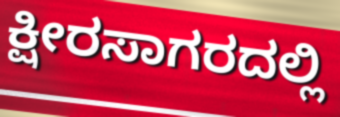
ಕ್ಷೀರಸಾಗರದಲ್ಲಿ